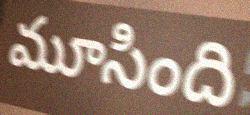
మూసింది